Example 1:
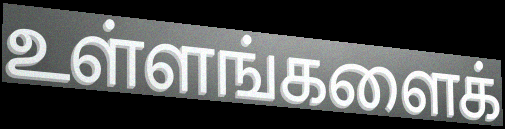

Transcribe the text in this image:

உள்ளங்களைக்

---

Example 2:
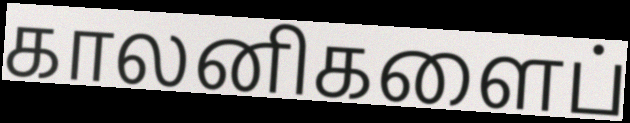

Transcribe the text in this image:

காலனிகளைப்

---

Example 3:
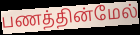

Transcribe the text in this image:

பணத்தின்மேல்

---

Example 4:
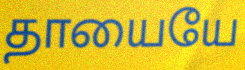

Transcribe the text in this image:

தாயையே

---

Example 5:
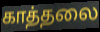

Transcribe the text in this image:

காத்தலை